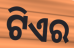
ଟିଏର